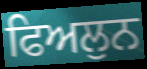
ਫਿਅਲੁਨ